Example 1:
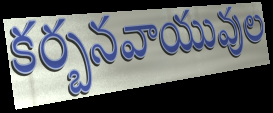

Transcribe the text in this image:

కర్బనవాయువుల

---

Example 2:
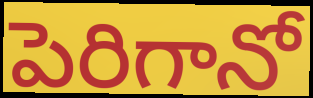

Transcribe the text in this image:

పెరిగానో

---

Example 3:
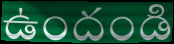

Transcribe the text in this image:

ఉందండి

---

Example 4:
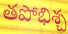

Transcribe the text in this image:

తపోభిశ్చ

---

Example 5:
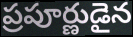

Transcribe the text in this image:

ప్రపూర్ణుడైన